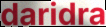
daridra